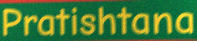
Pratishtana